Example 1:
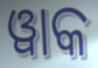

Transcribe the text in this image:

ୱାକ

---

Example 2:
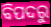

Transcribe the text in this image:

ବିପଦରୁ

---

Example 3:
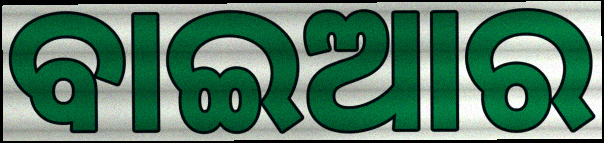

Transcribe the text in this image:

ବାଇଆର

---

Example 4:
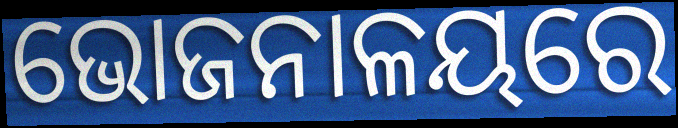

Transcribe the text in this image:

ଭୋଜନାଳୟରେ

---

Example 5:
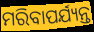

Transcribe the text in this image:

ମରିବାପର୍ଯ୍ୟନ୍ତ